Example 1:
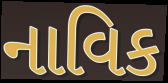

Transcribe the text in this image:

નાવિક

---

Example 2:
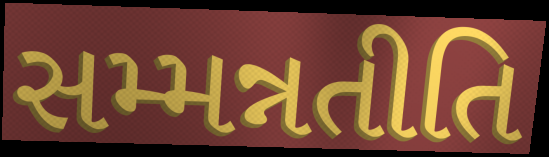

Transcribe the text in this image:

સમ્મન્નતીતિ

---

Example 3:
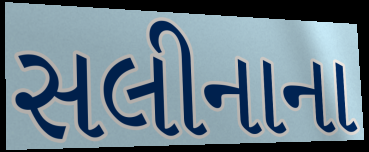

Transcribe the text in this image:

સલીનાના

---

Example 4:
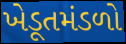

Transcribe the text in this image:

ખેડૂતમંડળો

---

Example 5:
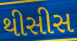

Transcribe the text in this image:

થીસીસ